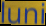
luni